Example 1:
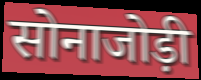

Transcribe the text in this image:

सोनाजोड़ी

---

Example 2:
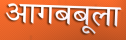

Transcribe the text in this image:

आगबबूला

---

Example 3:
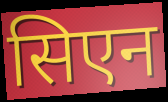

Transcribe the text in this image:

सिएन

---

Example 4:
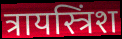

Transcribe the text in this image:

त्रायस्त्रिंश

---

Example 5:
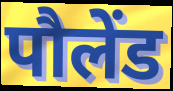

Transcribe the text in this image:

पौलेंड